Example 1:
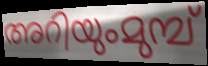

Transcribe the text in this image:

അറിയുംമുമ്പ്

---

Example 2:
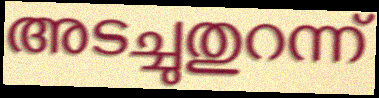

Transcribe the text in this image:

അടച്ചുതുറന്ന്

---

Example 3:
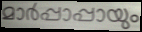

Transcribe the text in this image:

മാർപ്പാപ്പായും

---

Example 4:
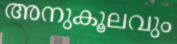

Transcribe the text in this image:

അനുകൂലവും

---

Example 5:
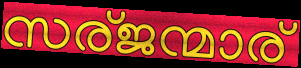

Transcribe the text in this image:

സര്ജന്മാര്